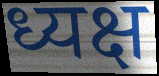
ध्यक्ष